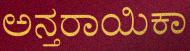
ಅನ್ತರಾಯಿಕಾ